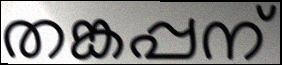
തങ്കപ്പന്